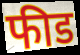
फीड